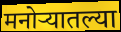
मनोर्‍यातल्या